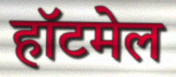
हॉटमेल